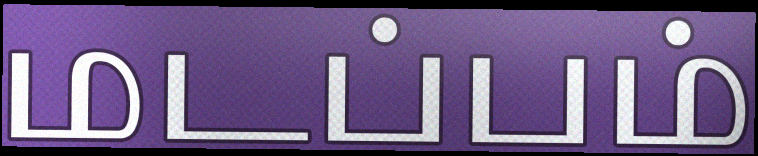
மடப்பம்